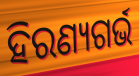
ହିରଣ୍ୟଗର୍ଭ